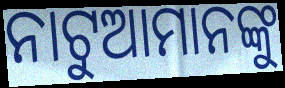
ନାଟୁଆମାନଙ୍କୁ